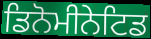
ਡਿਨੋਮੀਨੇਟਿਡ